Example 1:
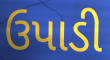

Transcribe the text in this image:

ઉપાડી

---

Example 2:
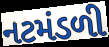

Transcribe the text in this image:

નટમંડળી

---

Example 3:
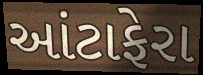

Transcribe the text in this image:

આંટાફેરા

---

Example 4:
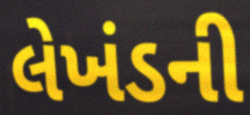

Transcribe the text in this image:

લેખંડની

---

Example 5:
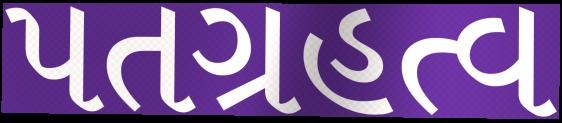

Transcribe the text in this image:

પતગ્રહત્વ